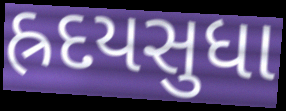
હ્રદયસુધા